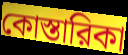
কোস্তারিকা